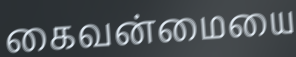
கைவன்மையை